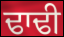
ਢਾਢੀ